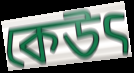
কেউৎ